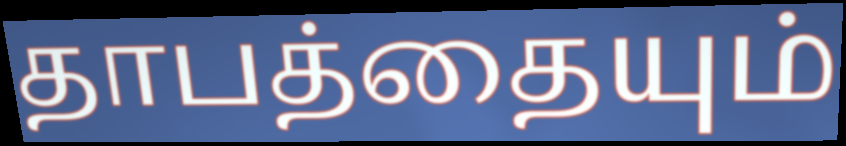
தாபத்தையும்